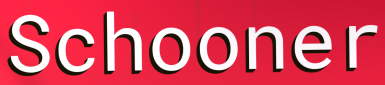
Schooner